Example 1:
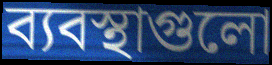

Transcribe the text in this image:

ব্যবস্থাগুলো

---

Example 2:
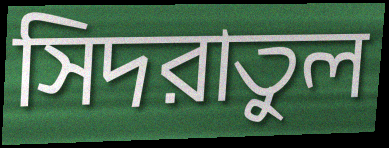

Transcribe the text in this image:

সিদরাতুল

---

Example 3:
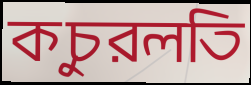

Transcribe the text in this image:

কচুরলতি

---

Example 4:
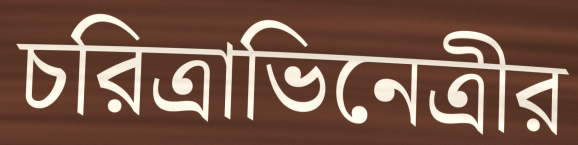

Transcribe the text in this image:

চরিত্রাভিনেত্রীর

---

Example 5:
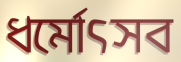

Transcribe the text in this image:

ধর্মোৎসব